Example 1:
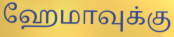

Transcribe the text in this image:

ஹேமாவுக்கு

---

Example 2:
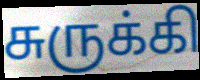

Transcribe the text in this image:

சுருக்கி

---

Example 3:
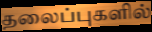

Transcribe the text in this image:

தலைப்புகளில்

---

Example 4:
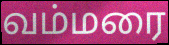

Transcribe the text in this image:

வம்மரை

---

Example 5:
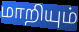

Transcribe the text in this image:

மாறியும்